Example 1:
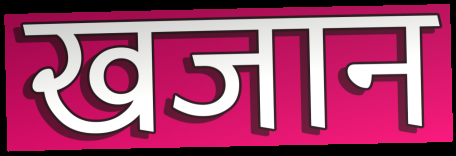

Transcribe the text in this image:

खजान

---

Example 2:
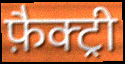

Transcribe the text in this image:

फ़ैक्ट्री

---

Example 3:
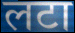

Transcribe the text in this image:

लटा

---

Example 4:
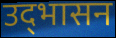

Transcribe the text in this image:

उद्भासन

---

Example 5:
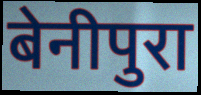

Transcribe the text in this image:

बेनीपुरा